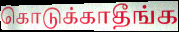
கொடுக்காதீங்க